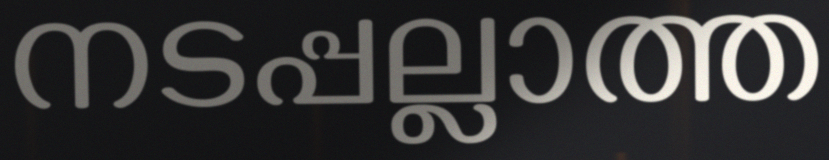
നടപ്പല്ലാത്ത